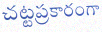
చట్టప్రకారంగా